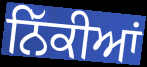
ਨਿੱਕੀਆਂ